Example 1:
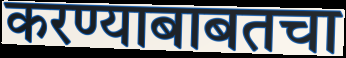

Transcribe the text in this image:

करण्याबाबतचा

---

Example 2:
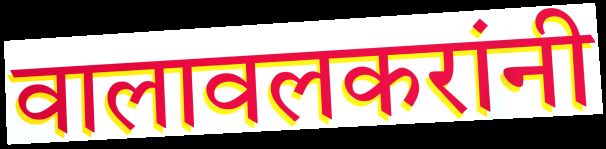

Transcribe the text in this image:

वालावलकरांनी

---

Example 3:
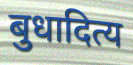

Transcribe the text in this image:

बुधादित्य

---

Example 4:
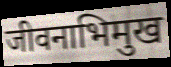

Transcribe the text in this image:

जीवनाभिमुख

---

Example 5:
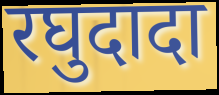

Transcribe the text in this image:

रघुदादा